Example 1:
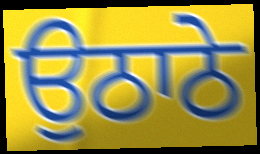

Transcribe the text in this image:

ਉਠਾਠੇ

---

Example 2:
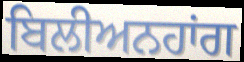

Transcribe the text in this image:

ਬਿਲੀਅਨਹਾਂਗ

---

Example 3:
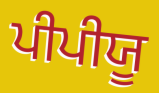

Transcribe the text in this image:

ਪੀਪੀਯੂ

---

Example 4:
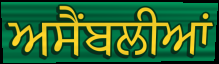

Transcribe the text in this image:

ਅਸੈਂਬਲੀਆਂ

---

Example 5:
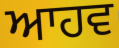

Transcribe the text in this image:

ਆਹਵ